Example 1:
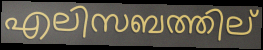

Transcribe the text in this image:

എലിസബത്തില്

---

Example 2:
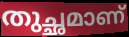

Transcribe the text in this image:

തുച്ഛമാണ്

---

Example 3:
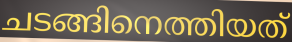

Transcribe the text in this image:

ചടങ്ങിനെത്തിയത്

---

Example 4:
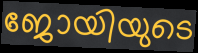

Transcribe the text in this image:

ജോയിയുടെ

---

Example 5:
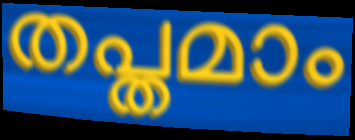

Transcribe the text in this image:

തപ്തമാം